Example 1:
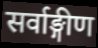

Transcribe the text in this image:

सर्वाङ्गीण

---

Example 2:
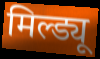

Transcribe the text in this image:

मिल्ड्यू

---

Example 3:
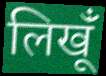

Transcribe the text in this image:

लिखूंँ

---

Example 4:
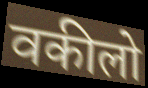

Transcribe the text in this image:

वकीलो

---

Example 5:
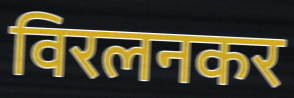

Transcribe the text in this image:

विरलनकर